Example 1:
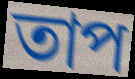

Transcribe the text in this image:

তাপ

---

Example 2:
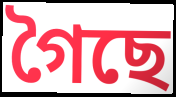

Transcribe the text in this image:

গৈছে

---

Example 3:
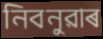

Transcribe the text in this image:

নিবনুৱাৰ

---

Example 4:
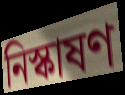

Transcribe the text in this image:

নিস্কাষণ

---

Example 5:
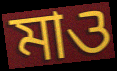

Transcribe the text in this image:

মাও